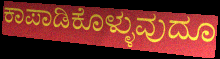
ಕಾಪಾಡಿಕೊಳ್ಳುವುದೂ